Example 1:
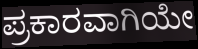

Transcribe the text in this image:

ಪ್ರಕಾರವಾಗಿಯೇ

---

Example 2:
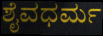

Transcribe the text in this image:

ಶೈವಧರ್ಮ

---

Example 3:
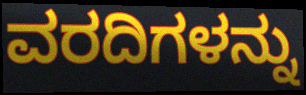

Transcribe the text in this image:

ವರದಿಗಳನ್ನು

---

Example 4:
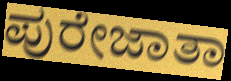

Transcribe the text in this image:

ಪುರೇಜಾತಾ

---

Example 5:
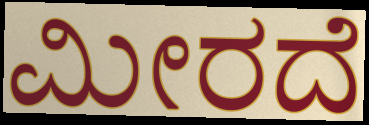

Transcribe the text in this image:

ಮೀರದೆ